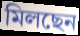
মিলছেন